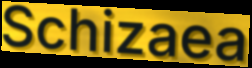
Schizaea